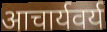
आचार्यवर्य